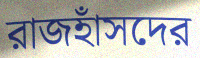
রাজহাঁসদের